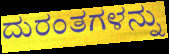
ದುರಂತಗಳನ್ನು